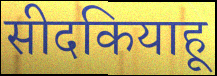
सीदकियाहू